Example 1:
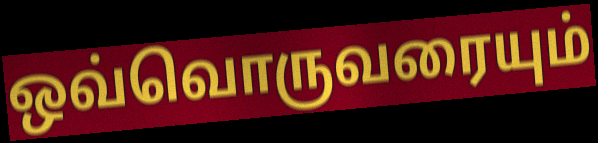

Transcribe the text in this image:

ஒவ்வொருவரையும்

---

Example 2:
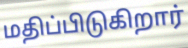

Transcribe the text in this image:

மதிப்பிடுகிறார்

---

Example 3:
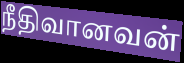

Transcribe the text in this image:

நீதிவானவன்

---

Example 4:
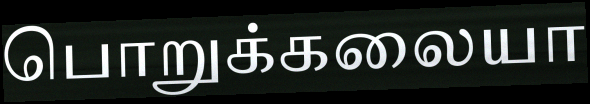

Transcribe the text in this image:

பொறுக்கலையா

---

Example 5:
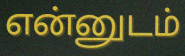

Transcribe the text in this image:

என்னுடம்